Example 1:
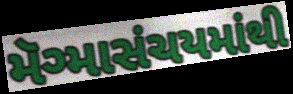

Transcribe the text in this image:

મૅગ્માસંચયમાંથી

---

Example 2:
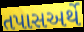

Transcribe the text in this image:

તપાસઅર્થે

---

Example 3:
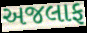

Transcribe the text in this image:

અજલાફ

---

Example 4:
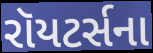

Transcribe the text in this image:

રૉયટર્સના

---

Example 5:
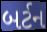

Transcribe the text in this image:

બર્ટન